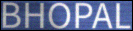
BHOPAL